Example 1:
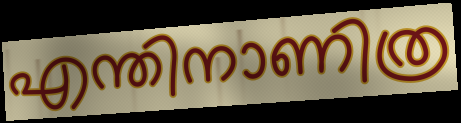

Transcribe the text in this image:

എന്തിനാണിത്ര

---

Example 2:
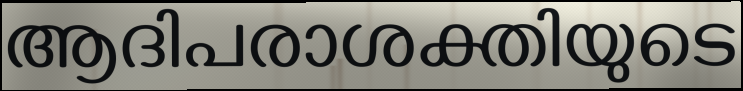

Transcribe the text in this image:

ആദിപരാശക്തിയുടെ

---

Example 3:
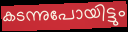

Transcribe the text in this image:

കടന്നുപോയിട്ടും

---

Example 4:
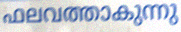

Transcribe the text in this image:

ഫലവത്താകുന്നു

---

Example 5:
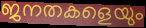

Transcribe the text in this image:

ജനതകളെയും